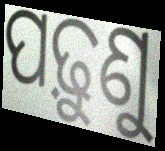
ପଢ଼ୁଣୁ